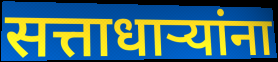
सत्ताधाऱ्यांना